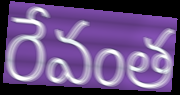
రేవంత